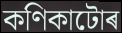
কণিকাটোৰ